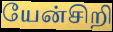
யேன்சிறி